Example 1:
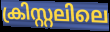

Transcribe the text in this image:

ക്രിസ്റ്റലിലെ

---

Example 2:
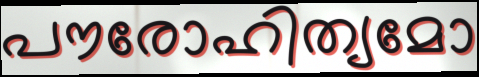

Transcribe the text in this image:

പൗരോഹിത്യമോ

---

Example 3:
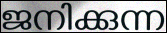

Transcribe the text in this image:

ജനിക്കുന്ന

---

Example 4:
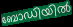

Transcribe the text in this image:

ബോഡിയിൽ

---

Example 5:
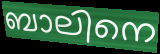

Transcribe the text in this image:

ബാലിനെ